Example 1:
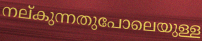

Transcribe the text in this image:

നല്കുന്നതുപോലെയുള്ള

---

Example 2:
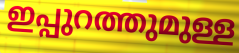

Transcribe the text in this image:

ഇപ്പുറത്തുമുള്ള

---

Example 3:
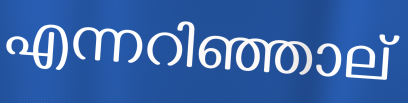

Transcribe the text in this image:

എന്നറിഞ്ഞാല്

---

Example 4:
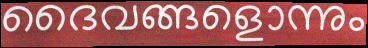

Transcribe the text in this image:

ദൈവങ്ങളൊന്നും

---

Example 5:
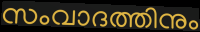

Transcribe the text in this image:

സംവാദത്തിനും